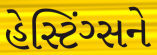
હેસ્ટિંગ્સને